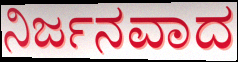
ನಿರ್ಜನವಾದ